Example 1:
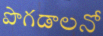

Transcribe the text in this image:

పొగడాలనో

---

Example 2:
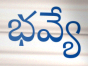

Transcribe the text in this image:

భవ్యే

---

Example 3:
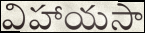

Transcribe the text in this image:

విహాయసా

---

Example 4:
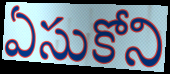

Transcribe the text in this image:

ఏసుకోని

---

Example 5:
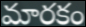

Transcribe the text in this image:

మారకం